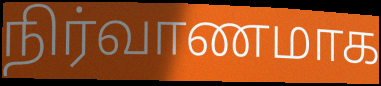
நிர்வாணமாக